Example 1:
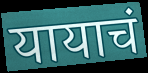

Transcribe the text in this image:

यायाचं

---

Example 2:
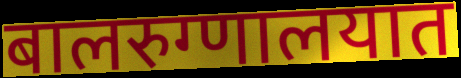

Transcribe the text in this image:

बालरुग्णालयात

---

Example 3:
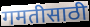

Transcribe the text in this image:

गमतीसाठी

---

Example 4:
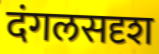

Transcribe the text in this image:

दंगलसदृश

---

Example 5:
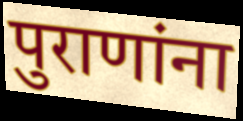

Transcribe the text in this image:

पुराणांना